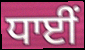
ਧਾਈਂ